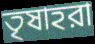
তৃষাহরা